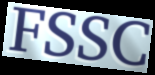
FSSC